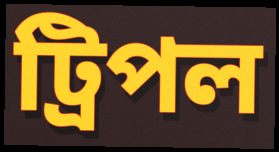
ট্রিপল